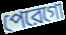
পেরেগো